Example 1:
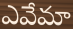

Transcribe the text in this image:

ఎవేమా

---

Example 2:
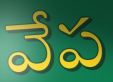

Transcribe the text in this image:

వేప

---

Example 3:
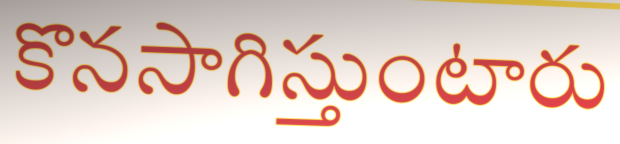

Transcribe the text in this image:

కొనసాగిస్తుంటారు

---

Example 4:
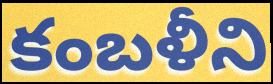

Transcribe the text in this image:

కంబళీని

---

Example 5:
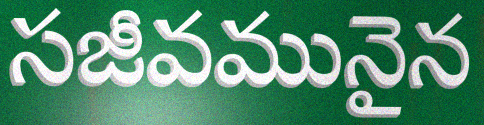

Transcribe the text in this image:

సజీవమునైన